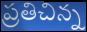
ప్రతిచిన్న